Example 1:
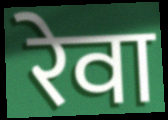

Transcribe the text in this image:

रेवा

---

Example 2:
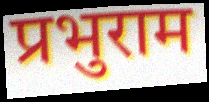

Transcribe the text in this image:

प्रभुराम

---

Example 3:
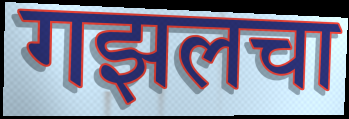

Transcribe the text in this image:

गझलचा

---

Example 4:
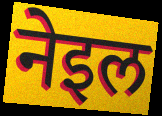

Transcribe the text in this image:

नेइल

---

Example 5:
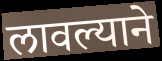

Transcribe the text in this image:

लावल्याने